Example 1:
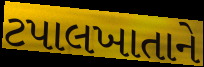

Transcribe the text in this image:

ટપાલખાતાને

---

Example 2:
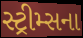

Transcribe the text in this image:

સ્ટ્રીમ્સના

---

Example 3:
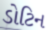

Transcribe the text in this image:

ડોટિન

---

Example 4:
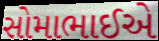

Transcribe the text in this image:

સોમાભાઈએ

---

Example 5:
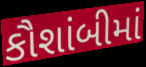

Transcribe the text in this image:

કૌશાંબીમાં